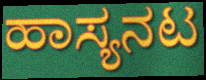
ಹಾಸ್ಯನಟ